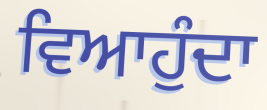
ਵਿਆਹੁੰਦਾ